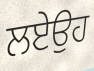
ਲਏਉਹ